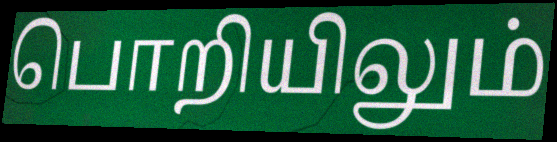
பொறியிலும்